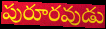
పురూరవుడు